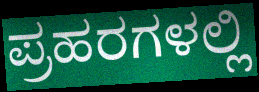
ಪ್ರಹರಗಳಲ್ಲಿ